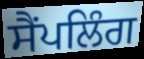
ਸੈਂਪਲਿੰਗ